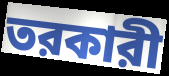
তরকারী